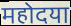
महोदया